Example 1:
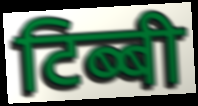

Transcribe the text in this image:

टिब्बी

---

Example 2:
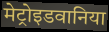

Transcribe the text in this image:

मेट्रोइडवानिया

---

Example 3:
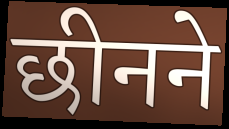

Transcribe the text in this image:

छीनने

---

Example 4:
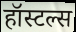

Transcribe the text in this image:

हॉस्टल्स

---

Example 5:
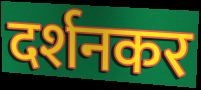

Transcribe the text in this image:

दर्शनकर